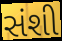
સંશી